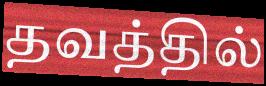
தவத்தில்